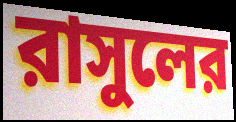
রাসুলের